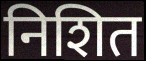
निशित